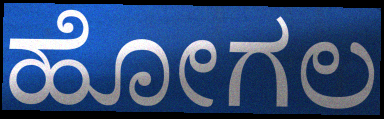
ಹೋಗಲ